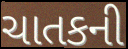
ચાતકની